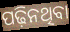
ପଢ଼ିନଥିବା